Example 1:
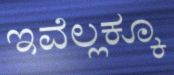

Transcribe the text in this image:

ಇವೆಲ್ಲಕ್ಕೂ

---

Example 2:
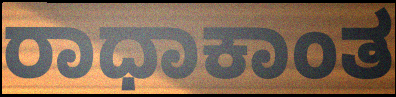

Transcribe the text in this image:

ರಾಧಾಕಾಂತ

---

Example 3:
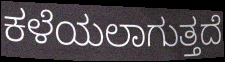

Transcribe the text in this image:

ಕಳೆಯಲಾಗುತ್ತದೆ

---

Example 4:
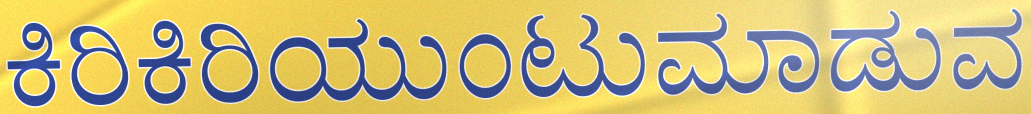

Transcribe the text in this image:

ಕಿರಿಕಿರಿಯುಂಟುಮಾಡುವ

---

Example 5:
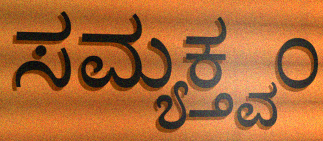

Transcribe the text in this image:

ಸಮ್ಯಕ್ತ್ವಂ